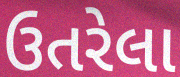
ઉતરેલા